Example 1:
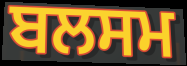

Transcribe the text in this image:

ਬਲਸਮ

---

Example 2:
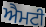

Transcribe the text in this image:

ਐਮਟੀ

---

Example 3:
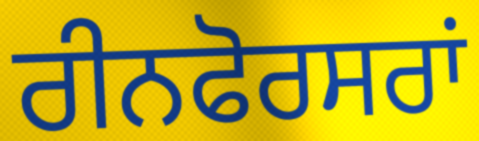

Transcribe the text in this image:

ਰੀਨਫੋਰਸਰਾਂ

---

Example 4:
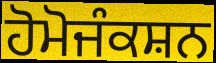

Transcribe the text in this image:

ਹੋਮੋਜੰਕਸ਼ਨ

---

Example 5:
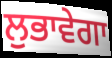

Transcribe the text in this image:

ਲੁਭਾਵੇਗਾ